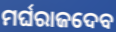
ମର୍ଘରାଜଦେବ